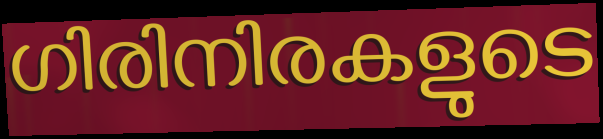
ഗിരിനിരകളുടെ